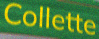
Collette